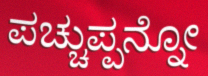
ಪಚ್ಚುಪ್ಪನ್ನೋ